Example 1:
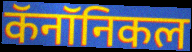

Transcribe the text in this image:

कॅनॉनिकल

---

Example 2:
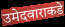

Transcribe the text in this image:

उमेदवाराकडे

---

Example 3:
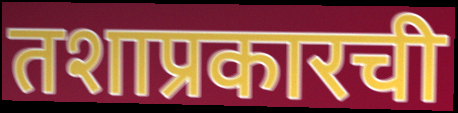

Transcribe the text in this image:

तशाप्रकारची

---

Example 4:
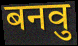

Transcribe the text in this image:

बनवु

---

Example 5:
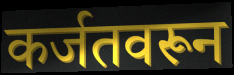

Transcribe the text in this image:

कर्जतवरून